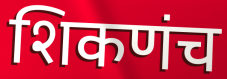
शिकणंच